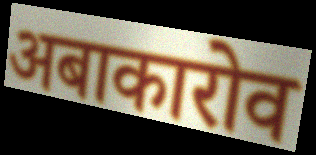
अबाकारोव